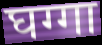
घग्गा